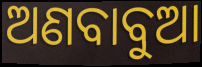
ଅଣବାବୁଆ